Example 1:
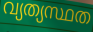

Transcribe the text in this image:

വ്യത്യസ്ഥത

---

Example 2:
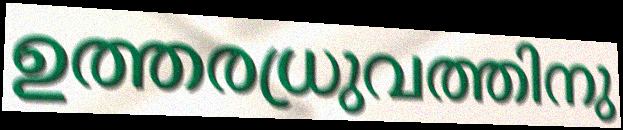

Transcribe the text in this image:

ഉത്തരധ്രുവത്തിനു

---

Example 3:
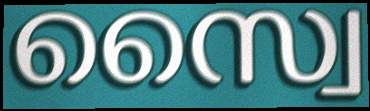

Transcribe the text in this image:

സ്വൈ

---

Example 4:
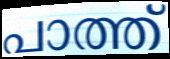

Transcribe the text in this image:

പാത്ത്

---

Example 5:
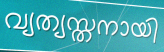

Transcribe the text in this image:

വ്യത്യസ്തനായി